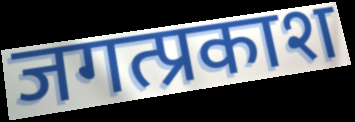
जगत्प्रकाश